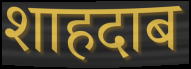
शाहदाब